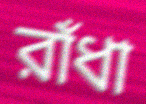
রাঁধা